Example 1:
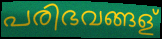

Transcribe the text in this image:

പരിഭവങ്ങള്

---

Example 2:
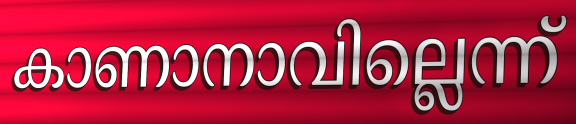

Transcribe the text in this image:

കാണാനാവില്ലെന്ന്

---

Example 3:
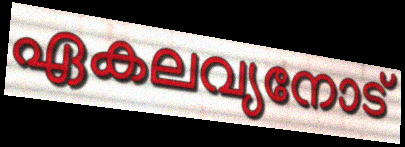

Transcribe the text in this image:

ഏകലവ്യനോട്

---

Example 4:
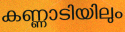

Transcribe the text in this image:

കണ്ണാടിയിലും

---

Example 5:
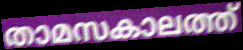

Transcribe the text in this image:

താമസകാലത്ത്